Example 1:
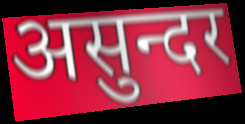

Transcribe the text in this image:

असुन्दर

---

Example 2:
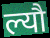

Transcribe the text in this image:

ल्यौ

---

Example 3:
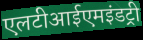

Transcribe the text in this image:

एलटीआईएमइंडट्री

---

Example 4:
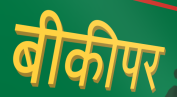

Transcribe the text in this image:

बीकीपर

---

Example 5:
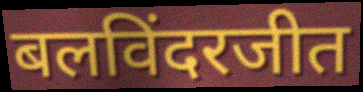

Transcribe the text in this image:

बलविंदरजीत